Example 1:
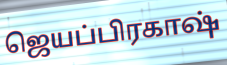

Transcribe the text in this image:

ஜெயப்பிரகாஷ்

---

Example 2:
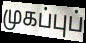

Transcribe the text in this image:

முகப்புப்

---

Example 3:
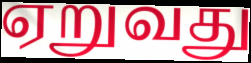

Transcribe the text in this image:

ஏறுவது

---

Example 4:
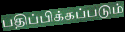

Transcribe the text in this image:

பதிப்பிக்கப்படும்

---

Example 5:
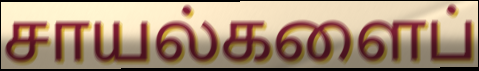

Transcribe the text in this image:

சாயல்களைப்